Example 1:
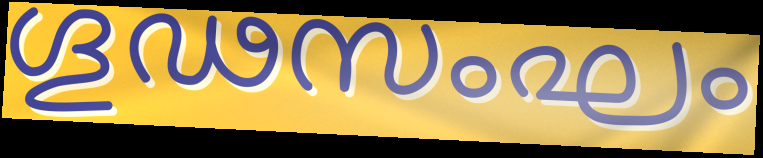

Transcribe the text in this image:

ഗൂഢസംഘം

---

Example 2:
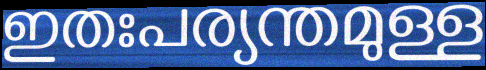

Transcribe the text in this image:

ഇതഃപര്യന്തമുള്ള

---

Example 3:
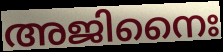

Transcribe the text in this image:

അജിനൈഃ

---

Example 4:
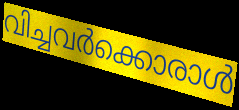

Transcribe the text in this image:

വിച്ചവർക്കൊരാൾ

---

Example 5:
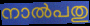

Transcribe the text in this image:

നാൽപതു